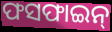
ଫସଫାଇନ୍